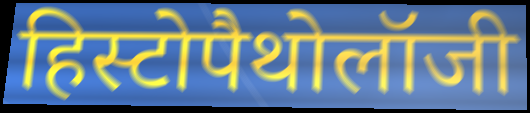
हिस्टोपैथोलॉजी